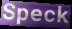
Speck